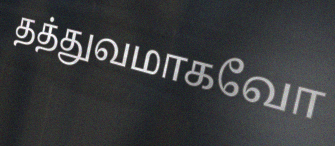
தத்துவமாகவோ